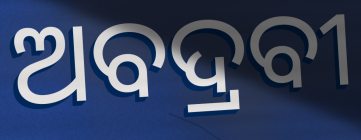
ଅବଦ୍ରବୀ